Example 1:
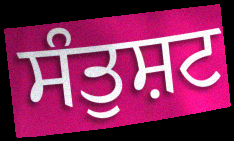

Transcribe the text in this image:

ਸੰਤੁਸ਼ਟ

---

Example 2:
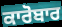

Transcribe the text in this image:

ਕਾਰੋਬਾਰ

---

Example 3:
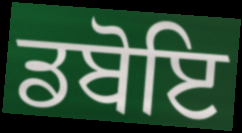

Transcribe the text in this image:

ਡਬੋਇ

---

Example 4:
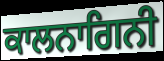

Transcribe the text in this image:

ਕਾਲਨਾਗਿਨੀ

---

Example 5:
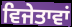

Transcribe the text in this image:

ਵਿਜੇਤਾਵਾਂ